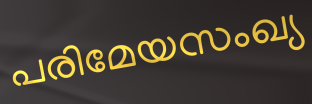
പരിമേയസംഖ്യ